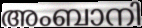
അംബാനി